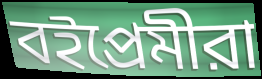
বইপ্রেমীরা